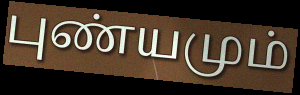
புண்யமும்